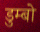
डुम्बो